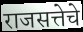
राजसत्तेचे